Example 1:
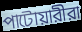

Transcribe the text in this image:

পাটোয়ারীরা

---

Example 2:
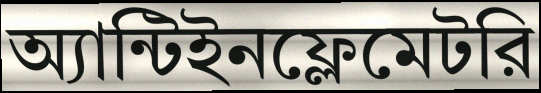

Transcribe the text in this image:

অ্যান্টিইনফ্লেমেটরি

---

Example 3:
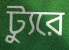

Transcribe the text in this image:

ট্যুরে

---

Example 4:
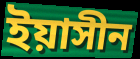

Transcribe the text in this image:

ইয়াসীন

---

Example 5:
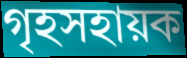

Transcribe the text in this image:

গৃহসহায়ক